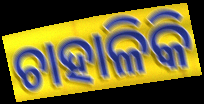
ଚାହାଳିକି